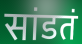
सांडतं